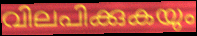
വിലപിക്കുകയും